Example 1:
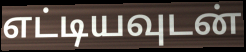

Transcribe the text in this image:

எட்டியவுடன்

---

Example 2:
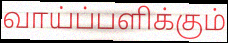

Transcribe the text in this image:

வாய்ப்பளிக்கும்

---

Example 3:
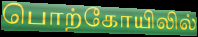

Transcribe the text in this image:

பொற்கோயிலில்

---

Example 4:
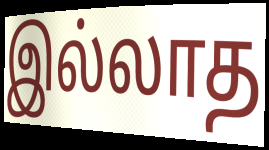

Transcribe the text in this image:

இல்லாத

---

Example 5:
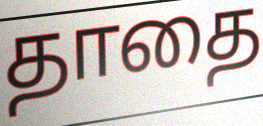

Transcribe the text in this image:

தாதை